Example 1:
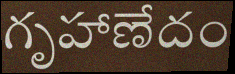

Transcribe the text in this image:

గృహాణేదం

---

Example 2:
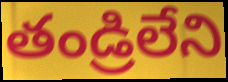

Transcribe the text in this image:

తండ్రిలేని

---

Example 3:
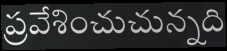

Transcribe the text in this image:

ప్రవేశించుచున్నది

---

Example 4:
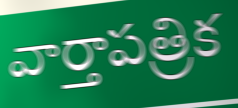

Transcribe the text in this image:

వార్తాపత్రిక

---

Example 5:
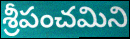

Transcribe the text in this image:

శ్రీపంచమిని